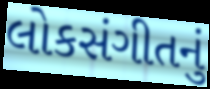
લોકસંગીતનું